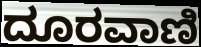
ದೂರವಾಣಿ